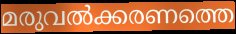
മരുവൽക്കരണത്തെ